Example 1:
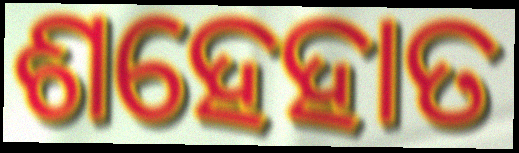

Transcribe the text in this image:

ଶହେହାତ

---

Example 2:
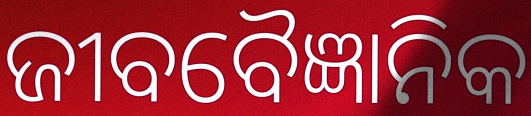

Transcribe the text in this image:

ଜୀବବୈଜ୍ଞାନିକ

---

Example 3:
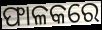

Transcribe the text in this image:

ଫାଳକରେ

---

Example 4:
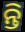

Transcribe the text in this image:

ନ୍ତି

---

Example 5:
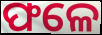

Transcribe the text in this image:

ଫଳେ